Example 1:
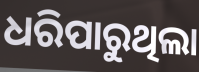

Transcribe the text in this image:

ଧରିପାରୁଥିଲା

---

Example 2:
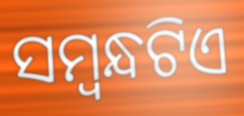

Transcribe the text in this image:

ସମ୍ୱନ୍ଧଟିଏ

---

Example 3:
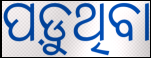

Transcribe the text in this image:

ପଡ଼ୁଥିବା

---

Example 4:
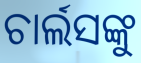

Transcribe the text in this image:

ଚାର୍ଲସଙ୍କୁ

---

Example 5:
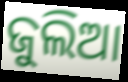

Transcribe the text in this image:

ଜୁଲିଆ